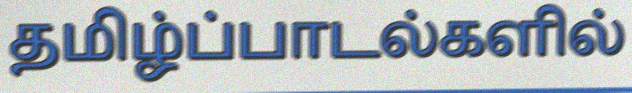
தமிழ்ப்பாடல்களில்